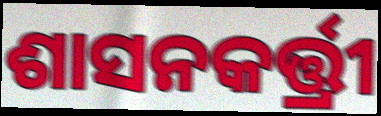
ଶାସନକର୍ତ୍ତ୍ରୀ